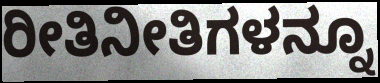
ರೀತಿನೀತಿಗಳನ್ನೂ